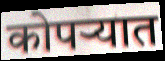
कोपर्‍यात